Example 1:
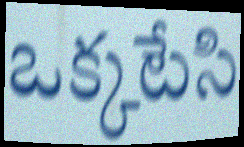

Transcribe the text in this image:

ఒక్కటేసి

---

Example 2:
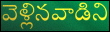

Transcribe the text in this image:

వెళ్లినవాడిని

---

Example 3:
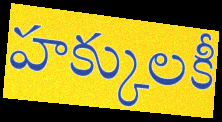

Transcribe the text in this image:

హక్కులకీ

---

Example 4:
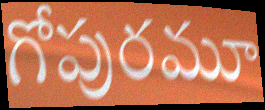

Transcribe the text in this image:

గోపురమూ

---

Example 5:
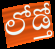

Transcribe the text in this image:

లోడ్తో